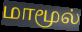
மாமூல்